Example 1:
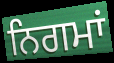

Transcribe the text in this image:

ਨਿਗਮਾਂ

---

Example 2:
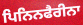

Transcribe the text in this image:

ਪਿਨਿਨਫੈਰੀਨਾ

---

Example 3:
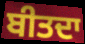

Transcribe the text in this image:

ਬੀਤਦਾ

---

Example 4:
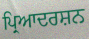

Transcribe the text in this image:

ਪ੍ਰਿਆਦਰਸ਼ਨ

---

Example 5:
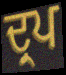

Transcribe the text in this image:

ਦ੍ਰਪ